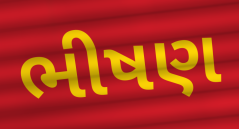
ભીષણ